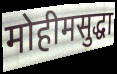
मोहीमसुद्धा